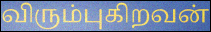
விரும்புகிறவன்